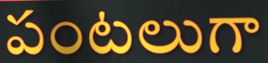
పంటలుగా